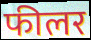
फीलर